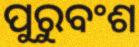
ପୁରୁବଂଶ